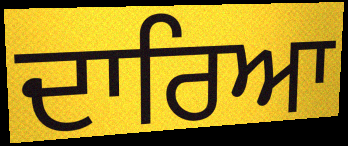
ਦਾਰਿਆ